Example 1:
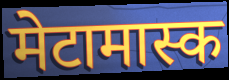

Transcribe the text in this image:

मेटामास्क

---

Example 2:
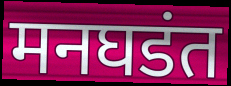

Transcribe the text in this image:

मनघडंत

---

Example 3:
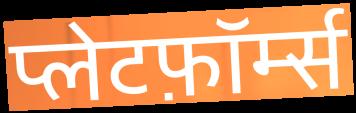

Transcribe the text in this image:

प्लेटफ़ॉर्म्स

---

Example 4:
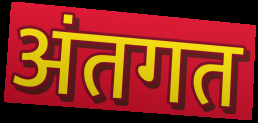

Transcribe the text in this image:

अंतगत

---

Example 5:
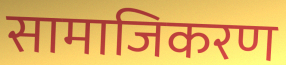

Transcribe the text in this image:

सामाजिकरण